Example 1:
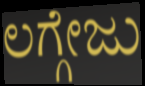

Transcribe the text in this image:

ಲಗ್ಗೇಜು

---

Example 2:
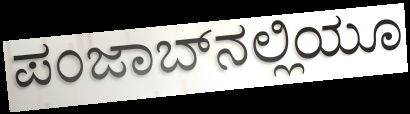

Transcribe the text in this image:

ಪಂಜಾಬ್‌ನಲ್ಲಿಯೂ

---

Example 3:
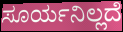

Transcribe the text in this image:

ಸೂರ್ಯನಿಲ್ಲದೆ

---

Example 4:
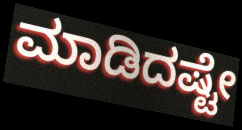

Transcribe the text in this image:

ಮಾಡಿದಷ್ಟೇ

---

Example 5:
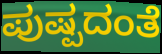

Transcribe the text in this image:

ಪುಷ್ಪದಂತೆ